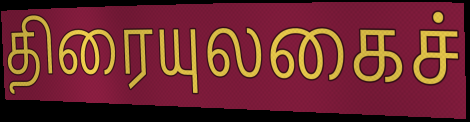
திரையுலகைச்